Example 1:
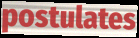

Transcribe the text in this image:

postulates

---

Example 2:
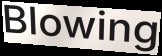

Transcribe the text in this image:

Blowing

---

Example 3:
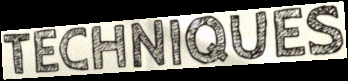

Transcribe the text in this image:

TECHNIQUES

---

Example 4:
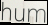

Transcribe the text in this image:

hum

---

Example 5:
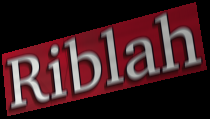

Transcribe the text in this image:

Riblah